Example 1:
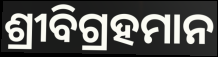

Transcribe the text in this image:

ଶ୍ରୀବିଗ୍ରହମାନ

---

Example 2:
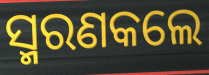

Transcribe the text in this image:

ସ୍ମରଣକଲେ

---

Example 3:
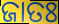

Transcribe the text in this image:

ଜାତଃ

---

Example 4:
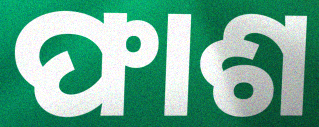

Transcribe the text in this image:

ଫାଶ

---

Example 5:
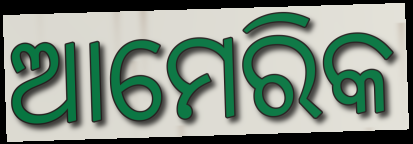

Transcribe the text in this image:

ଆମେରିକ